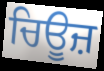
ਚਿਊਜ਼